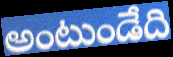
అంటుండేది